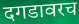
दगडावरच